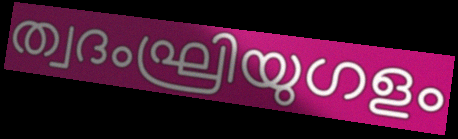
ത്വദംഘ്രിയുഗളം